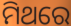
ମିଥରେ